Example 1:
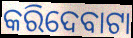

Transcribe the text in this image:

କରିଦେବାଟା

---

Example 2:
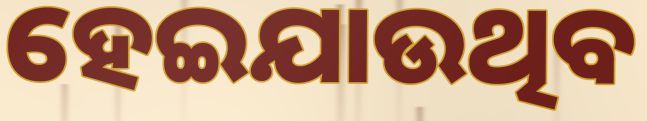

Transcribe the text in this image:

ହେଇଯାଉଥିବ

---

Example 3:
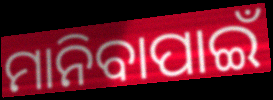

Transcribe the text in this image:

ମାନିବାପାଇଁ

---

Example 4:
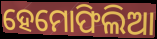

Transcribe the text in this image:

ହେମୋଫିଲିଆ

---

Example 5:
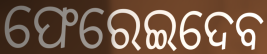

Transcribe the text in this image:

ଫେରେଇଦେବ